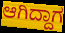
ಆಗಿದ್ದಾಗ